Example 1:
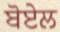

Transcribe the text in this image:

ਬੋਏਲ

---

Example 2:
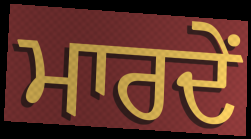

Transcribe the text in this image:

ਮਾਰਦੇਂ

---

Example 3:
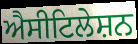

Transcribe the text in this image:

ਐਸੀਟਿਲੇਸ਼ਨ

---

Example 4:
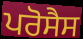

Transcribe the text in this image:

ਪਰੋਸੈਸ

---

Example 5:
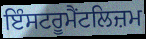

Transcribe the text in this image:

ਇੰਸਟਰੂਮੈਂਟਲਿਜ਼ਮ